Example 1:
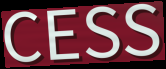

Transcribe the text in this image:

CESS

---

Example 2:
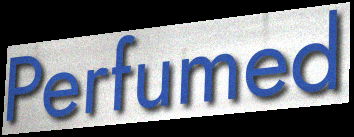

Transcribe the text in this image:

Perfumed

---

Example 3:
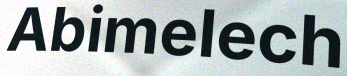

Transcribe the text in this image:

Abimelech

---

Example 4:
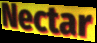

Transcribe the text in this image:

Nectar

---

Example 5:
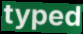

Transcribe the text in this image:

typed